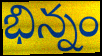
భిన్నం